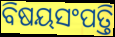
ବିଷୟସଂପତ୍ତି